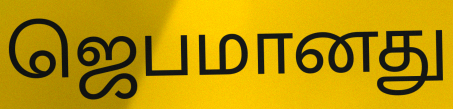
ஜெபமானது